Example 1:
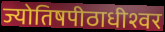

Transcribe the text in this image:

ज्योतिषपीठाधीश्वर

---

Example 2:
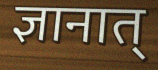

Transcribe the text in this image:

ज्ञानात्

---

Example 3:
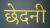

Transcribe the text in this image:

छेदनी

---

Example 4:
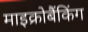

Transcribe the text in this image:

माइक्रोबैंकिंग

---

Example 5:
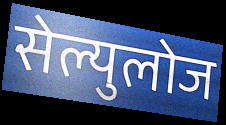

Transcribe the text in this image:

सेल्युलोज